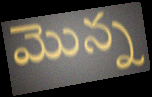
మొన్న